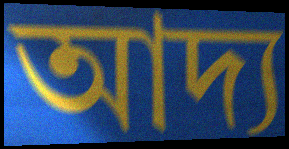
আদ্য